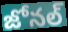
జోనల్